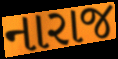
નારાજ